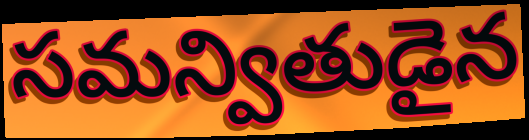
సమన్వితుడైన